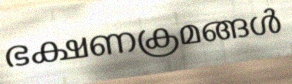
ഭക്ഷണക്രമങ്ങൾ